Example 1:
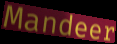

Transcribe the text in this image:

Mandeer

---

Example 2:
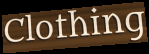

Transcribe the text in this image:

Clothing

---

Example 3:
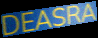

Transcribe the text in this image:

DEASRA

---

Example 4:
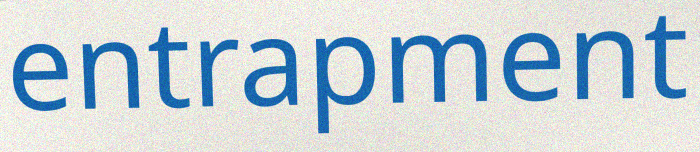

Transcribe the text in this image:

entrapment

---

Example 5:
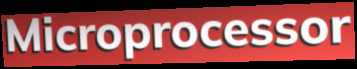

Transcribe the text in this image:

Microprocessor